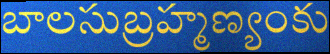
బాలసుబ్రహ్మణ్యంకు